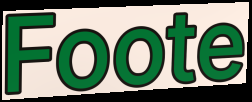
Foote